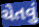
ચેતવું